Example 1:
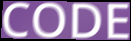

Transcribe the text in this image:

CODE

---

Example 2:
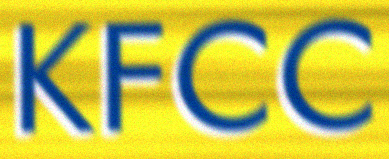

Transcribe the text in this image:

KFCC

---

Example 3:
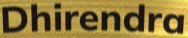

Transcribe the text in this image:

Dhirendra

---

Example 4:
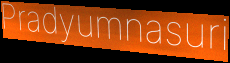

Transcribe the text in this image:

Pradyumnasuri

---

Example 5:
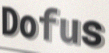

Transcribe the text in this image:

Dofus